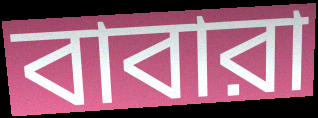
বাবারা